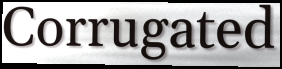
Corrugated